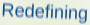
Redefining